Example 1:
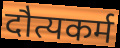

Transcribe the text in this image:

दौत्यकर्म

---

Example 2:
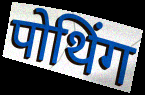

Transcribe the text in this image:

पोथिंग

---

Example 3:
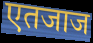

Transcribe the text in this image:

एतजाज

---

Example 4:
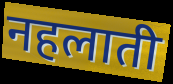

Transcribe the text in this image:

नहलाती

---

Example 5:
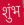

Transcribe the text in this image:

शुंभ